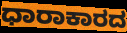
ಧಾರಾಕಾರದ